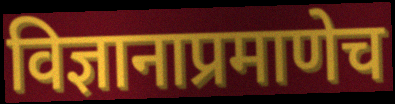
विज्ञानाप्रमाणेच